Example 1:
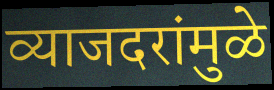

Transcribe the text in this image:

व्याजदरांमुळे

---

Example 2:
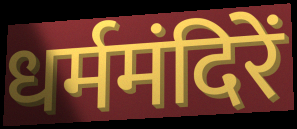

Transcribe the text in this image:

धर्ममंदिरें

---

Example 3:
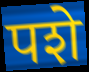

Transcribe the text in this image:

पशे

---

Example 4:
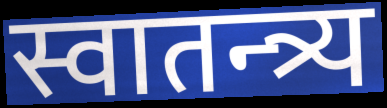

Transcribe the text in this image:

स्वातन्त्र्य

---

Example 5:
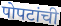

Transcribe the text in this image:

पोपटांची